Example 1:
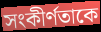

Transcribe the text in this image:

সংকীর্ণতাকে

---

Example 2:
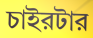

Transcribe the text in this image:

চাইরটার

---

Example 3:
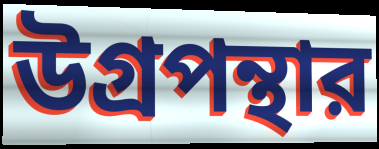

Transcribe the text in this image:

উগ্রপন্থার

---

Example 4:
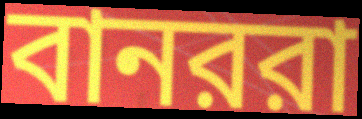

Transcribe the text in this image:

বানররা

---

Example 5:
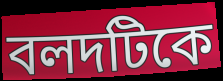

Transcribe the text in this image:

বলদটিকে